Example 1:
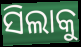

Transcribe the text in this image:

ସିଲାକୁ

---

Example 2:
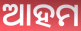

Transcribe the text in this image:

ଆହମ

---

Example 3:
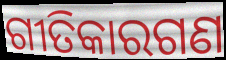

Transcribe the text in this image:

ଗୀତିକାରଗଣ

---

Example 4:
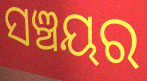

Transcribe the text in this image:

ସଞ୍ଚୟର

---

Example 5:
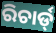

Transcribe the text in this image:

ରିଚାର୍ଡ୍